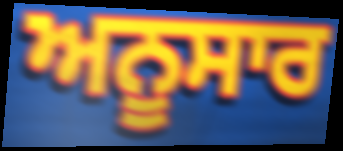
ਅਨੂਸਾਰ